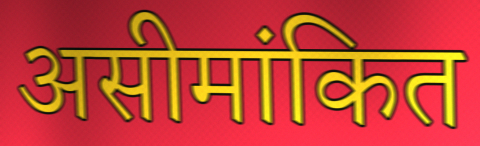
असीमांकित